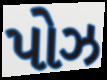
પોઝ